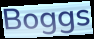
Boggs